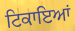
ਟਿਕਾਇਆਂ